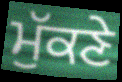
ਮੁੱਕਣੇ